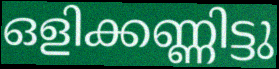
ഒളിക്കണ്ണിട്ടു